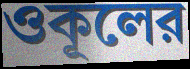
ওকূলের